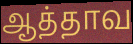
ஆத்தாவ